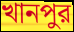
খানপুর